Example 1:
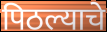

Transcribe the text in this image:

पिठल्याचे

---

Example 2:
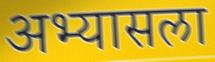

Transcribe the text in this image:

अभ्यासला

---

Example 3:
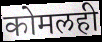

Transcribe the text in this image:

कोमलही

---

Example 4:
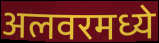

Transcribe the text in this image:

अलवरमध्ये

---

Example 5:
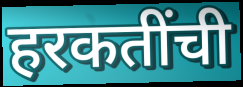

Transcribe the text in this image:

हरकतींची